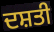
ਦਸ਼ਤੀ